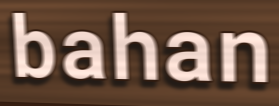
bahan